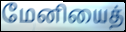
மேனியைத்